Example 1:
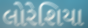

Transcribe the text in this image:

લોરેશિયા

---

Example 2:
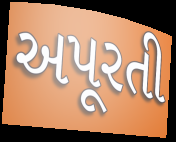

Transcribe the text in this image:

અપૂરતી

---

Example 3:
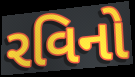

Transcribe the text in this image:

રવિનો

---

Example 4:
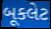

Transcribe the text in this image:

બૂકલેટ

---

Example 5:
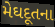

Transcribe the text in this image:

મેઘદૂતના